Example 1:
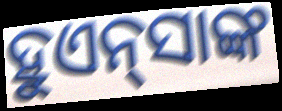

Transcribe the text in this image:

ହୁଏନ୍‍ସାଙ୍କ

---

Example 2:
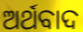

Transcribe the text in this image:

ଅର୍ଥବାଦ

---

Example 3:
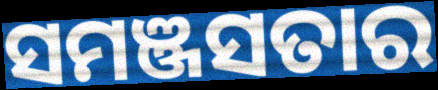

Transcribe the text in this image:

ସମଞ୍ଜସତାର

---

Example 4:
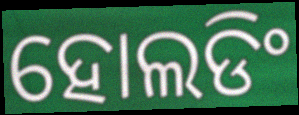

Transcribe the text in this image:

ହୋଲଡିଂ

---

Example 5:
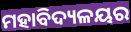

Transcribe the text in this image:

ମହାବିଦ୍ୟଳୟର